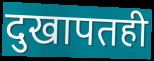
दुखापतही